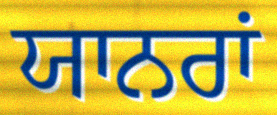
ਯਾਨਰਾਂ